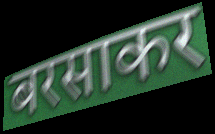
बरसाकर